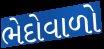
ભેદોવાળો